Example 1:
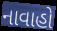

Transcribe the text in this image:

નાવાહો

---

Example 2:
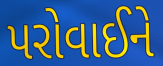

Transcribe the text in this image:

પરોવાઈને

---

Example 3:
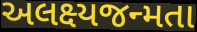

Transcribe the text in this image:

અલક્ષ્યજન્મતા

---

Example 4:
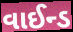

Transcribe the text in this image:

વાઈન્ડ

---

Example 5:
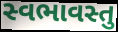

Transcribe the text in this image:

સ્વભાવસ્તુ